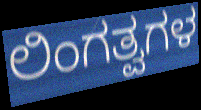
ಲಿಂಗತ್ವಗಳ